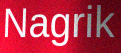
Nagrik